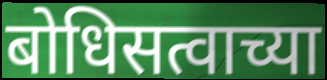
बोधिसत्वाच्या